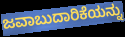
ಜವಾಬುದಾರಿಕೆಯನ್ನು